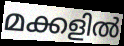
മക്കളിൽ